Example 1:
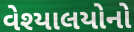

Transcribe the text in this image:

વેશ્યાલયોનો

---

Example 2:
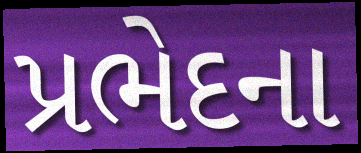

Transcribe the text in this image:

પ્રભેદના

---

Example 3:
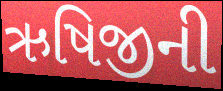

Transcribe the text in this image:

ઋષિજીની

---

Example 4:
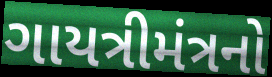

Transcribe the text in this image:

ગાયત્રીમંત્રનો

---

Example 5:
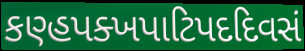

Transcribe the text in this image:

કણ્હપક્ખપાટિપદદિવસં